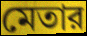
মেতার